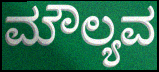
ಮೌಲ್ಯವ